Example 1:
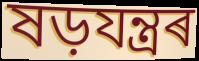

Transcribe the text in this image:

ষড়যন্ত্ৰৰ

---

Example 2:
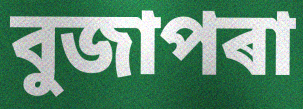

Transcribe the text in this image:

বুজাপৰা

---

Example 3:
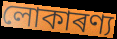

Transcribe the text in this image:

লোকাৰণ্য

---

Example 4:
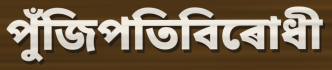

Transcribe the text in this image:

পুঁজিপতিবিৰোধী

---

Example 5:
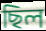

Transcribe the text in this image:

ছিল